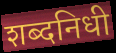
शब्दनिधी